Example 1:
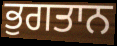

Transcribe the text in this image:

ਭੁਗਤਾਨ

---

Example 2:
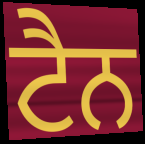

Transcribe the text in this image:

ਟੈਨ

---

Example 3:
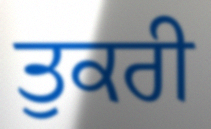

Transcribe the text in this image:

ਤੁਕਰੀ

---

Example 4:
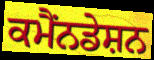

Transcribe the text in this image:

ਕਮੈਂਨਡੇਸ਼ਨ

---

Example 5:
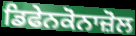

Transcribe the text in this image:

ਡਿਫੇਨਕੋਨਾਜ਼ੋਲ